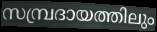
സമ്പ്രദായത്തിലും